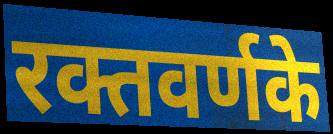
रक्तवर्णके